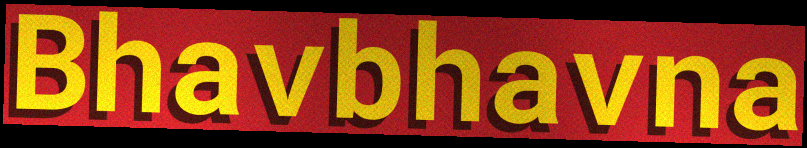
Bhavbhavna